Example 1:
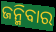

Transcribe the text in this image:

ଜନ୍ମିବାର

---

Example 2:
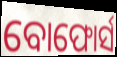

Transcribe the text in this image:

ବୋଫୋର୍ସ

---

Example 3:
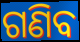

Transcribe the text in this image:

ଗଣିବ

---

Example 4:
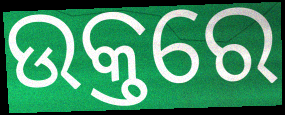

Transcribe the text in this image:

ଉକ୍ତରେ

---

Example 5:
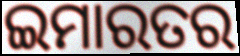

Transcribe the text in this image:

ଇମାରତର